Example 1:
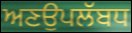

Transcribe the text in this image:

ਅਣਉਪਲੱਬਧ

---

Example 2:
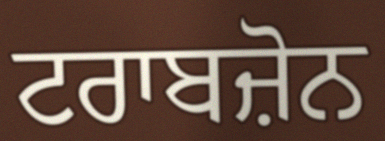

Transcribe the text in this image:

ਟਰਾਬਜ਼ੋਨ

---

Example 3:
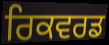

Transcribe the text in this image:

ਰਿਕਵਰਡ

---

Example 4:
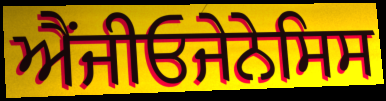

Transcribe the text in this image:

ਐਂਜੀਓਜੇਨੇਸਿਸ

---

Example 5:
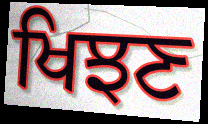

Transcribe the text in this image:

ਖਿਝਣ